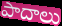
పాదాలు